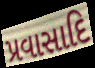
પ્રવાસાદિ